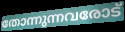
തോന്നുന്നവരോട്